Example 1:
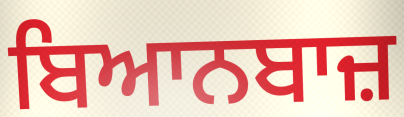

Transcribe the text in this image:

ਬਿਆਨਬਾਜ਼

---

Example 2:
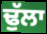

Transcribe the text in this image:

ਢੁੱਲਾ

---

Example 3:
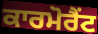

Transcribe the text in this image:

ਕਾਰਮੋਰੈਂਟ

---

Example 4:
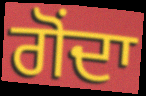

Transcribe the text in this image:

ਗੋਂਦਾ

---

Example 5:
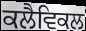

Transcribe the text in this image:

ਕਲੈਵਿਕਲ